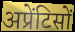
अप्रेंटिसों